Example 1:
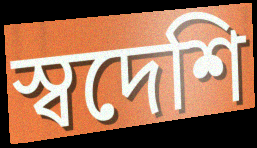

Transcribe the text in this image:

স্বদেশি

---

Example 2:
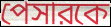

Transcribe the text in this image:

পেসারকে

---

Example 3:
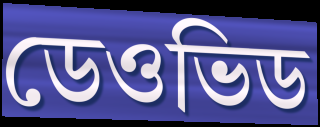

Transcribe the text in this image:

ডেওভিড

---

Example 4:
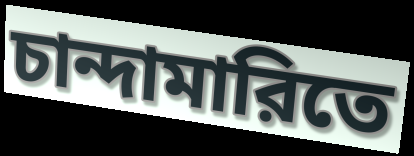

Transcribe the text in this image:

চান্দামারিতে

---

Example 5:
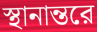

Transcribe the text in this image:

স্থানান্তরে